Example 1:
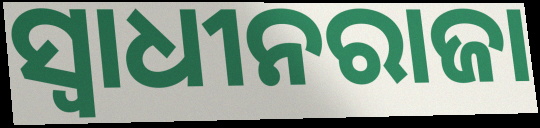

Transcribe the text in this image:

ସ୍ୱାଧୀନରାଜା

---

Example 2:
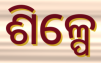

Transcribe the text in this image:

ଶିଳ୍ପେ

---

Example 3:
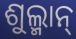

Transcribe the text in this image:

ଶୁଲ୍ମାନ୍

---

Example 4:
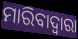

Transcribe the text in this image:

ମାରିବାଦ୍ୱାରା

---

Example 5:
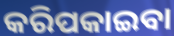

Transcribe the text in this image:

କରିପକାଇବା